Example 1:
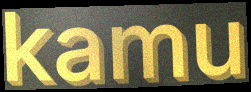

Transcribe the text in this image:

kamu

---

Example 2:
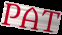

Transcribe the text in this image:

PAT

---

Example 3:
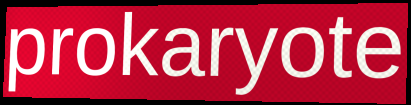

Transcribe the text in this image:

prokaryote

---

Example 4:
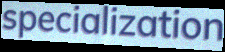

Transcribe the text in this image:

specialization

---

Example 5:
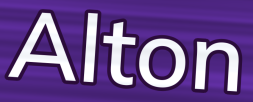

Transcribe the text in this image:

Alton